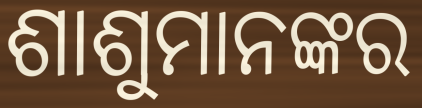
ଶାଶୁମାନଙ୍କର